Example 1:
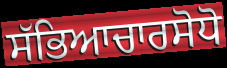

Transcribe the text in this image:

ਸੱਭਿਆਚਾਰਸੋਧੋ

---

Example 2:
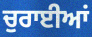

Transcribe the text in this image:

ਚੁਰਾਈਆਂ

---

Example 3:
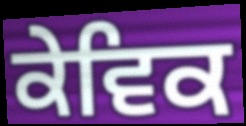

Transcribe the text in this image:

ਕੇਵਿਕ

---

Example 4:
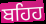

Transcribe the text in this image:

ਬਹਿਹ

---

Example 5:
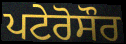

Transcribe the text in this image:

ਪਟੇਰੋਸੌਰ